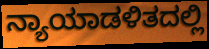
ನ್ಯಾಯಾಡಳಿತದಲ್ಲಿ